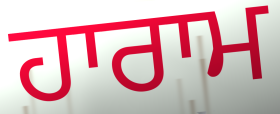
ਹਾਰਾਮ